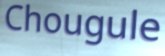
Chougule